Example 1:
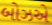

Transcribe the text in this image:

બોઝએ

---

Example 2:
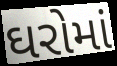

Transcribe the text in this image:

ઘરોમાં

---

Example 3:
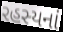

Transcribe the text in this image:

રહસ્યનાં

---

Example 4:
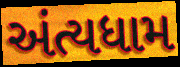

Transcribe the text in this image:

અંત્યધામ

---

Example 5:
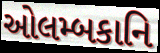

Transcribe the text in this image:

ઓલમ્બકાનિ